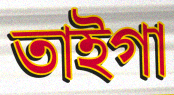
তাইগা